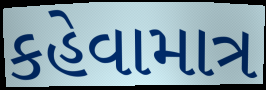
કહેવામાત્ર